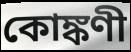
কোঙ্কণী